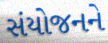
સંયોજનને